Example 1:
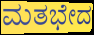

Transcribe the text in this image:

ಮತಭೇದ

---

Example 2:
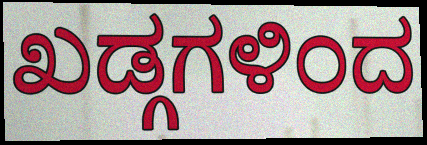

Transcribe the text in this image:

ಖಡ್ಗಗಳಿಂದ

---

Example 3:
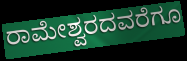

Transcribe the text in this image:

ರಾಮೇಶ್ವರದವರೆಗೂ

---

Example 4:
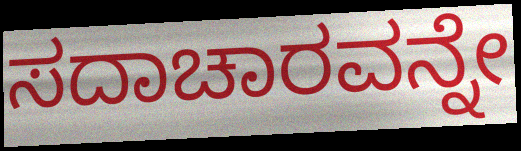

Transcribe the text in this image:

ಸದಾಚಾರವನ್ನೇ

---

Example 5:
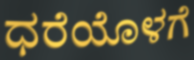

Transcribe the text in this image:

ಧರೆಯೊಳಗೆ